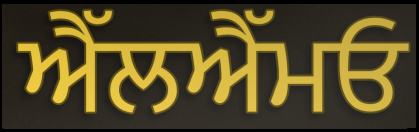
ਐੱਲਐੱਮਓ